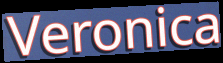
Veronica